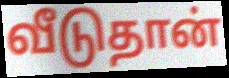
வீடுதான்